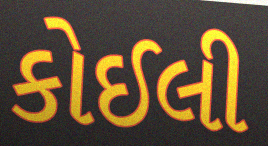
કોઈલી